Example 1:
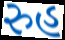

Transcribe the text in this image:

રુહ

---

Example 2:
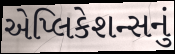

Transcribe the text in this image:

એપ્લિકેશન્સનું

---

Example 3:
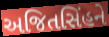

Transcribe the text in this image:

અજિતસિંહને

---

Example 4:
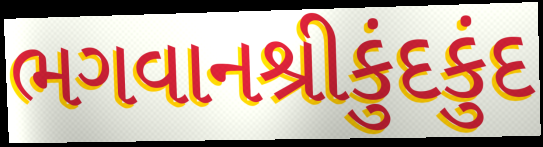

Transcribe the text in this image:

ભગવાનશ્રીકુંદકુંદ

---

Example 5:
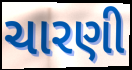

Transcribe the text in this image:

ચારણી